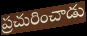
ప్రచురించాడు